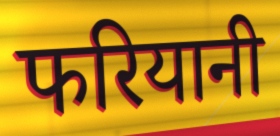
फरियानी